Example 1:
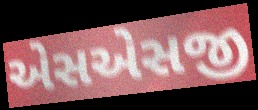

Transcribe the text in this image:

એસએસજી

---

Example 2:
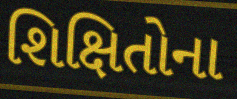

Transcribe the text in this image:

શિક્ષિતોના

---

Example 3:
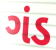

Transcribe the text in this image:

ગંડ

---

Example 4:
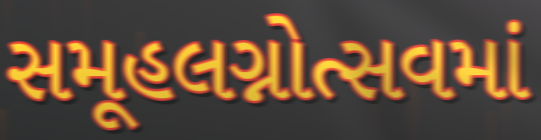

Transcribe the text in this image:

સમૂહલગ્નોત્સવમાં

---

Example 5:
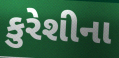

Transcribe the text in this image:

કુરેશીના